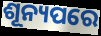
ଶୂନ୍ୟପରେ